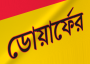
ডোয়ার্ফের